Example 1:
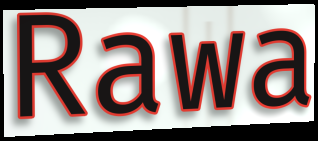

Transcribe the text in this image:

Rawa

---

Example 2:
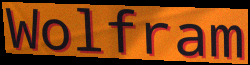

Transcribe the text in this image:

Wolfram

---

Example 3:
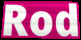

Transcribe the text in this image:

Rod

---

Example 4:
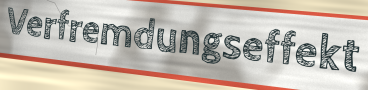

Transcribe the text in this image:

Verfremdungseffekt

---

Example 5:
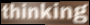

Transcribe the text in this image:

thinking